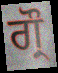
ਗ੍ਰੌ